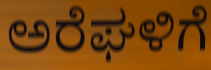
ಅರೆಘಳಿಗೆ